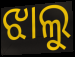
ଝାଲୁ